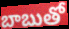
బాబుతో